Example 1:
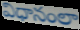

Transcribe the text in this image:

విధానంలా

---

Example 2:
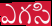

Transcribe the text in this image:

ఎగసి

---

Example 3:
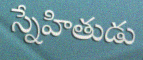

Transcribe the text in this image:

స్నేహితుడు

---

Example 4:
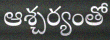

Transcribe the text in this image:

ఆశ్చర్యంతో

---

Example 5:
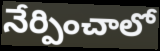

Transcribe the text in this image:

నేర్పించాలో